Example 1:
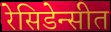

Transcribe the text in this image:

रेसिडेन्सीत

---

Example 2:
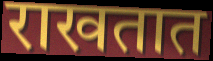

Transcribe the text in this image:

राखतात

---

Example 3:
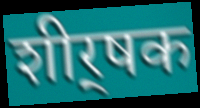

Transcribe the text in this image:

शीर्षक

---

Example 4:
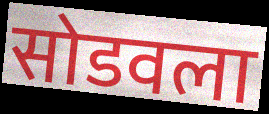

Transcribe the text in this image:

सोडवला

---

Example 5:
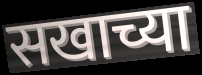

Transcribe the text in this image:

सखाच्या